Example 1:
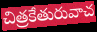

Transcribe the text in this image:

చిత్రకేతురువాచ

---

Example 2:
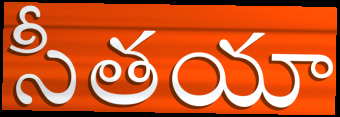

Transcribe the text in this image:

సీతయా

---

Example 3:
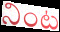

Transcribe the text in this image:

నింట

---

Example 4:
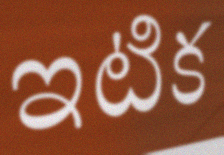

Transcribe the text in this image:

ఇటిక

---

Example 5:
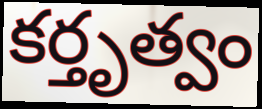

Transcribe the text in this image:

కర్తృత్వం